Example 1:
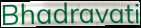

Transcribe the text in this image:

Bhadravati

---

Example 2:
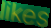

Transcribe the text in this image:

likes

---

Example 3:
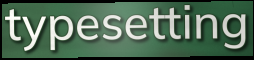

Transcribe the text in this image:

typesetting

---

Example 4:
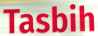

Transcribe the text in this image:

Tasbih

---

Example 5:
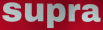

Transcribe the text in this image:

supra